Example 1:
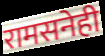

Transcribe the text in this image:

रामसनेही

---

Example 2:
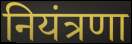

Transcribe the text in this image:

नियंत्रणा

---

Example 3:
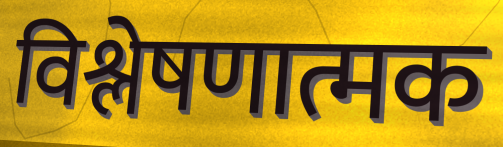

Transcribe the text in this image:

विश्लेषणात्मक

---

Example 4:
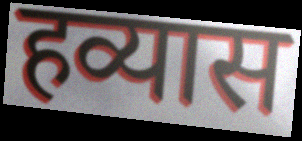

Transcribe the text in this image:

हव्यास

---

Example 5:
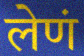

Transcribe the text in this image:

लेणं